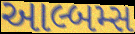
આલ્બમ્સ